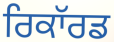
ਰਿਕਾੱਰਡ